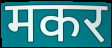
मकर